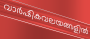
വാർഷികവലയങ്ങളിൽ